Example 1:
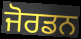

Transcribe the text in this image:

ਜੋਰਡਨ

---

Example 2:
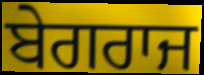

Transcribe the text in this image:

ਬੇਗਰਾਜ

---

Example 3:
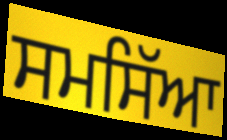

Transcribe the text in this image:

ਸਮਸਿੱਆ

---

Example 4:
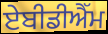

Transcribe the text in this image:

ਏਬੀਡੀਐੱਮ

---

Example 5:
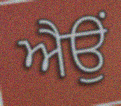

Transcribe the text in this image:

ਐਉਂ